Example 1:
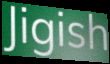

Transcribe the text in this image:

Jigish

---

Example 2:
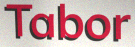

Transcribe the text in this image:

Tabor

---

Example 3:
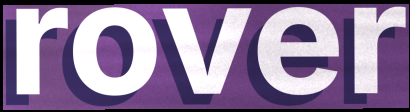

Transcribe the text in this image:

rover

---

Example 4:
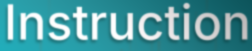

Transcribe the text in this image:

Instruction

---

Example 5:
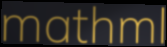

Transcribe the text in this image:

mathml